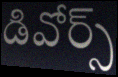
డివోర్స్